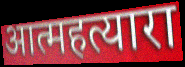
आत्महत्यारा